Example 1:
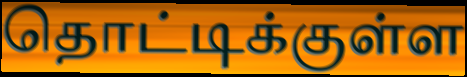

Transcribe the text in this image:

தொட்டிக்குள்ள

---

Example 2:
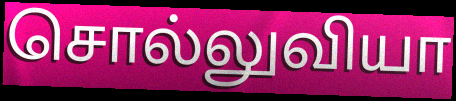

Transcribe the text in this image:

சொல்லுவியா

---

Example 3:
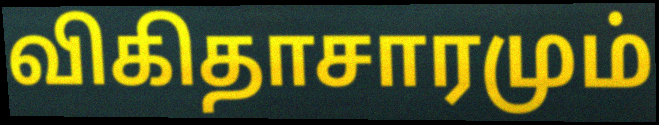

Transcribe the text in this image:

விகிதாசாரமும்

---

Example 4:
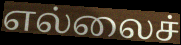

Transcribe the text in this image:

எல்லைச்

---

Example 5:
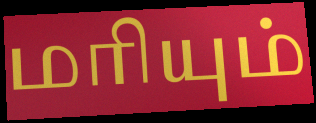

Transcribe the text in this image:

மரியும்